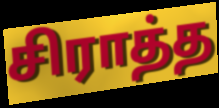
சிராத்த